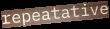
repeatative